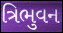
ત્રિભુવન